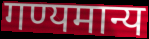
गण्यमान्य